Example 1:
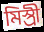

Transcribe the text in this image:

মিস্ত্ৰী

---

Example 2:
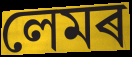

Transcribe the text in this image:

লেমৰ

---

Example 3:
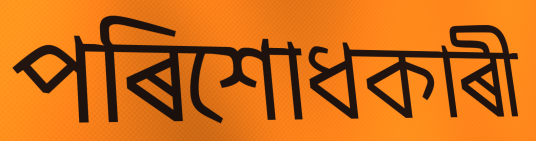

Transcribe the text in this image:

পৰিশোধকাৰী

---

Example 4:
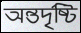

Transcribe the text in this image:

অন্তৰ্দৃষ্টি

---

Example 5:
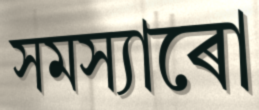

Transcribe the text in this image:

সমস্যাৰো